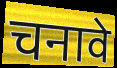
चनावे